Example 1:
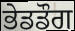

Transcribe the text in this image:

ਭੇਡਡੌਗ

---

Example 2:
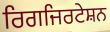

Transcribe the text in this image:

ਰਿਗਜਿਰਟੇਸ਼ਨ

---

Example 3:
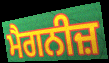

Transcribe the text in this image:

ਮੈਗਨੀਜ਼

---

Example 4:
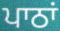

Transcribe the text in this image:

ਪਾਠਾਂ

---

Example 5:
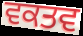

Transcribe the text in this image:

ਵਕਤਵ